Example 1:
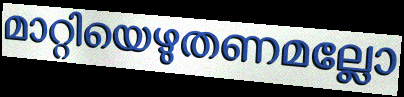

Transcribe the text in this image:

മാറ്റിയെഴുതണമല്ലോ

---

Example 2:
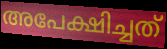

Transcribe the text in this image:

അപേക്ഷിച്ചത്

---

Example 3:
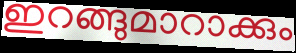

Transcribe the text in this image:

ഇറങ്ങുമാറാക്കും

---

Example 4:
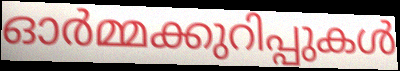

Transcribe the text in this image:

ഓർമ്മക്കുറിപ്പുകൾ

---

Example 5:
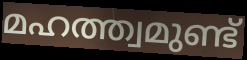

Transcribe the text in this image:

മഹത്ത്വമുണ്ട്